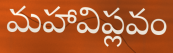
మహావిప్లవం